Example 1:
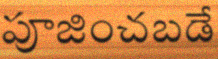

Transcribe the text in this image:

పూజించబడే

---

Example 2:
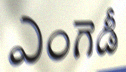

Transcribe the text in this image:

ఎంగెడీ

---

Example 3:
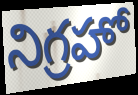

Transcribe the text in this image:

నిగ్రహో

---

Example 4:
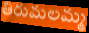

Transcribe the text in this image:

తిరుమలమ్మ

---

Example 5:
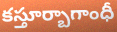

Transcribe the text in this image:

కస్తూర్బాగాంధీ